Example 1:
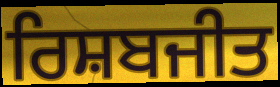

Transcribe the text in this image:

ਰਿਸ਼ਬਜੀਤ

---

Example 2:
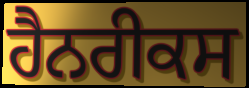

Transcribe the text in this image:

ਹੈਨਰੀਕਸ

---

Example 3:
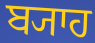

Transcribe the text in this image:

ਬ੍ਯਾਹ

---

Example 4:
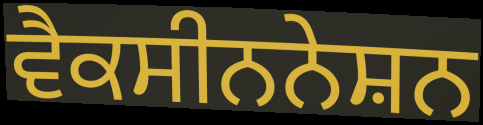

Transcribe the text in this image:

ਵੈਕਸੀਨਨੇਸ਼ਨ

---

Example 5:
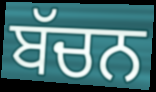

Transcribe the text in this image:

ਬੱਚਨ